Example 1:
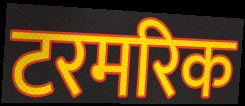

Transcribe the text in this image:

टरमरिक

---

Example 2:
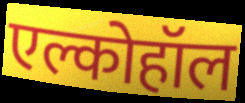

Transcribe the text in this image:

एल्कोहॉल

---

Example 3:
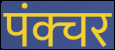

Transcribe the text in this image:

पंक्चर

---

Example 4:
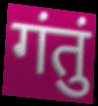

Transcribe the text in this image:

गंतुं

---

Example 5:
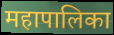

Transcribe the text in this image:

महापालिका